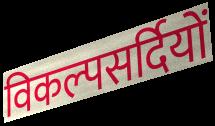
विकल्पसर्दियों